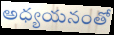
అధ్యయనంతో